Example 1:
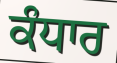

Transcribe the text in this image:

ਕੰਧਾਰ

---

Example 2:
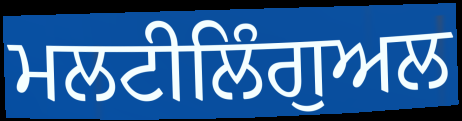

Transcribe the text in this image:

ਮਲਟੀਲਿੰਗੁਅਲ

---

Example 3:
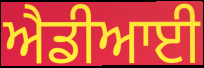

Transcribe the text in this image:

ਐਡੀਆਈ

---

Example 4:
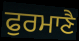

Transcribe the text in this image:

ਫੁਰਮਾਣੈ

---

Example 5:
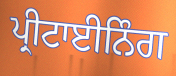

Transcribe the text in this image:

ਪ੍ਰੀਟਾਈਨਿੰਗ